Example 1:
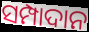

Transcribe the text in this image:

ସମ୍ପାଦାନ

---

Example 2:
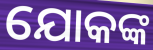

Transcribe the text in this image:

ଯୋକଙ୍କ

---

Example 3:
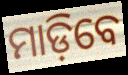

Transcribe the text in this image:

ମାଡ଼ିବେ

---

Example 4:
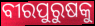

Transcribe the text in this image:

ବୀରପୁରୁଷକୁ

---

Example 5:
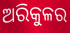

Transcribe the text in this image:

ଅରିକୁଳର